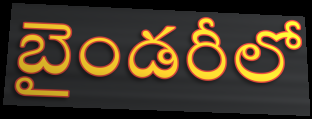
బైండరీలో